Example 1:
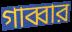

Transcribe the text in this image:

গাব্বার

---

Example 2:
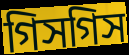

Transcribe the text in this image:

গিসগিস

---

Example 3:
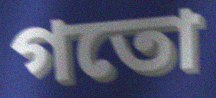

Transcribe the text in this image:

গতো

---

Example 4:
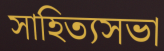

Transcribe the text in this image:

সাহিত্যসভা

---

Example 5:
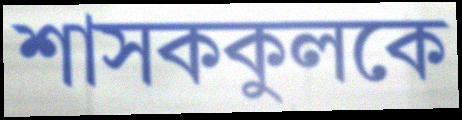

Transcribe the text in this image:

শাসককুলকে